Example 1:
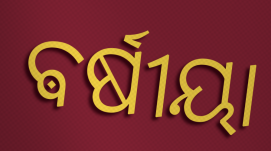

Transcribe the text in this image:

ଵର୍ଷୀୟା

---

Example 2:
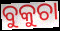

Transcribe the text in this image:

ବୁକୁଚା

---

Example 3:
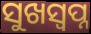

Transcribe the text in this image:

ସୁଖସ୍ୱପ୍ନ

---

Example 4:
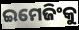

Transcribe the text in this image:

ଇମେଜିଂକୁ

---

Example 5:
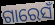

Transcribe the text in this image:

ଗାରେସଁ